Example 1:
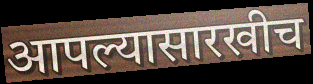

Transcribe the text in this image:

आपल्यासारखीच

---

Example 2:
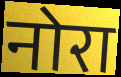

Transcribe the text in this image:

नोरा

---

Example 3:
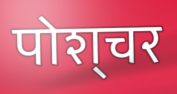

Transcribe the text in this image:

पोश्चर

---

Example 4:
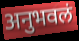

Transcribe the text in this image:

अनुभवलं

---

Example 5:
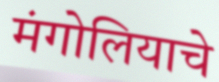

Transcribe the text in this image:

मंगोलियाचे